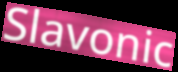
Slavonic